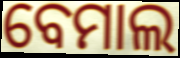
ବେମାଲ